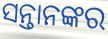
ସନ୍ତାନଙ୍କର